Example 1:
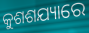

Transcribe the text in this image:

କୁଶଶଯ୍ୟାରେ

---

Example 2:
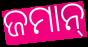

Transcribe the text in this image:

ଜମାନ୍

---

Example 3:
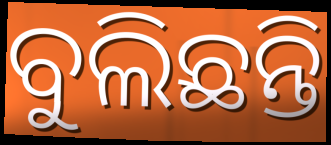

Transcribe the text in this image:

ବୁଲିଛନ୍ତି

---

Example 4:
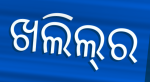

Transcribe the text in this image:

ଖଲିଲ୍‍ର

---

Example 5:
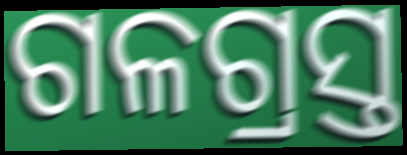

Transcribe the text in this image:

ଗଳଗ୍ରସ୍ତ